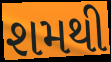
શમથી